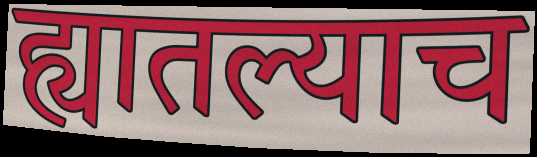
ह्यातल्याच